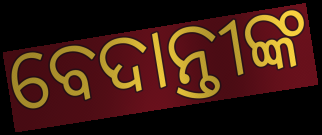
ବେଦାନ୍ତୀଙ୍କ